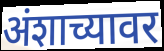
अंशाच्यावर